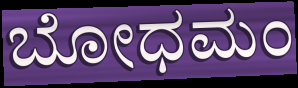
ಬೋಧಮಂ